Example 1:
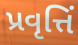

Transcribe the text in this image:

પ્રવૃત્તિં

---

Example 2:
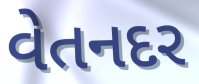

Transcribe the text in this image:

વેતનદર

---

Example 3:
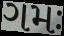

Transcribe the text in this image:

ગમઃ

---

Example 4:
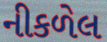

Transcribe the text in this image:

નીકળેલ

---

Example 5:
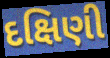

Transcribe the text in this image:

દક્ષિણી